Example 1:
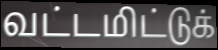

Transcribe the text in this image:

வட்டமிட்டுக்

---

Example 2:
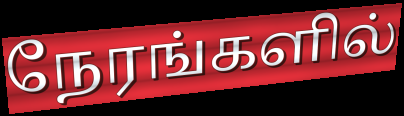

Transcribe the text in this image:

நேரங்களில்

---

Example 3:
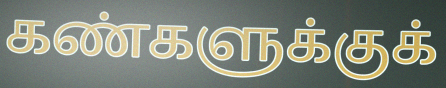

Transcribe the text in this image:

கண்களுக்குக்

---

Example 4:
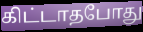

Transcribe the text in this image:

கிட்டாதபோது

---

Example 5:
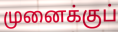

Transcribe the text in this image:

முனைக்குப்